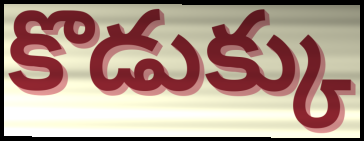
కొడుక్కు